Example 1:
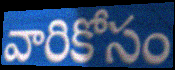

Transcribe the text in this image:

వారికోసం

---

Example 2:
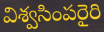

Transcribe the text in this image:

విశ్వసింపరైరి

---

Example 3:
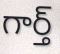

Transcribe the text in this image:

గార్త్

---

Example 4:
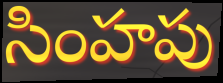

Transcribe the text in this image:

సింహపు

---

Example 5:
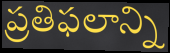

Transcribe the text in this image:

ప్రతిఫలాన్ని